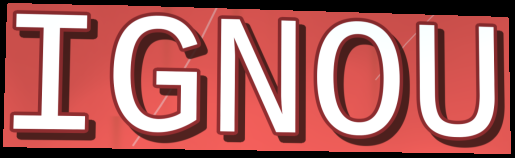
IGNOU